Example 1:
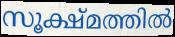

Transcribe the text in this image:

സൂക്ഷ്മത്തിൽ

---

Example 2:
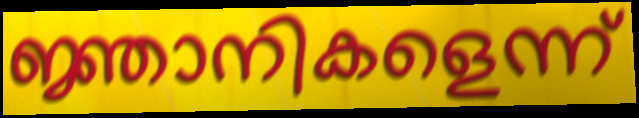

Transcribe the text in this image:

ജ്ഞാനികളെന്ന്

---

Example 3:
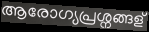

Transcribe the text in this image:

ആരോഗ്യപ്രശ്നങ്ങള്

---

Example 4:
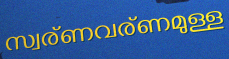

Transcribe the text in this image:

സ്വര്ണവര്ണമുള്ള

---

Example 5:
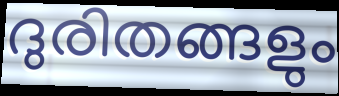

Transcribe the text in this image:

ദുരിതങ്ങളും